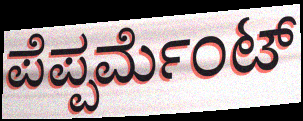
ಪೆಪ್ಪರ್ಮೆಂಟ್